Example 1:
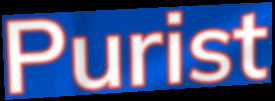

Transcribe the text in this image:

Purist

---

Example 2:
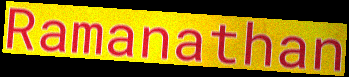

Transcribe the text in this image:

Ramanathan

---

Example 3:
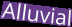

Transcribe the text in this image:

Alluvial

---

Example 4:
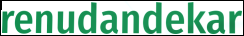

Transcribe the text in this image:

renudandekar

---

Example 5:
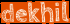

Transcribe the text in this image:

dekhil